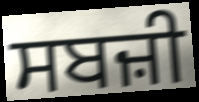
ਸਬਜ਼ੀ